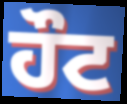
ਹੌਟ